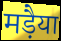
मड़ैया